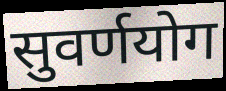
सुवर्णयोग